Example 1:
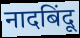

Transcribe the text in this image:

नादबिंदू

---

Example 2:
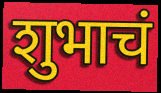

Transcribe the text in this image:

शुभाचं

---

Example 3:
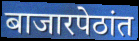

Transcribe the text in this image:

बाजारपेठांत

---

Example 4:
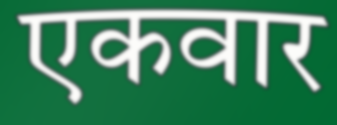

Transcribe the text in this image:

एकवार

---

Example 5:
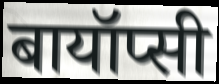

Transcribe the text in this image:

बायॉप्सी